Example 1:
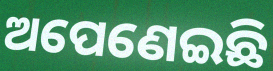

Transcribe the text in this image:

ଅପେଣେଇଛି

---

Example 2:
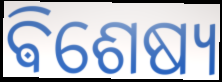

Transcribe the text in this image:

ଵିଶେଷ୍ୟ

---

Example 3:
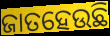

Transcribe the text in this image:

ଜାତହେଉଛି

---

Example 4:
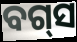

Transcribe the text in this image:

ବଗ୍‌ସ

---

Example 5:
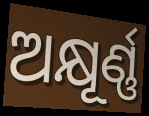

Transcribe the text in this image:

ଅକ୍ଷୂର୍ଣ୍ଣ